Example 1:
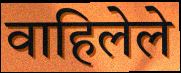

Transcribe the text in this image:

वाहिलेले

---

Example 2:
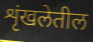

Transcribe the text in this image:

शृंखलेतील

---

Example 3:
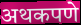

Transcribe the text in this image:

अथकपणे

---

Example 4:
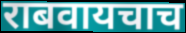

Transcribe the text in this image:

राबवायचाच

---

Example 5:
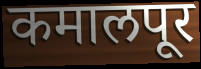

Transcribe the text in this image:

कमालपूर